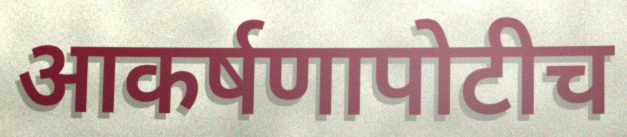
आकर्षणापोटीच